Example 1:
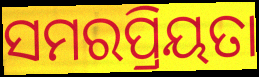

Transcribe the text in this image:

ସମରପ୍ରିୟତା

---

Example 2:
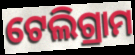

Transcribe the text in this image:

ଟେଲିଗ୍ରାମ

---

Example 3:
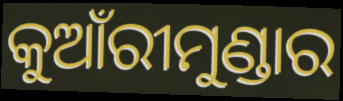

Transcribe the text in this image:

କୁଆଁରୀମୁଣ୍ଡାର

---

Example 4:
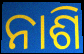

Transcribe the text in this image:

ନାଶି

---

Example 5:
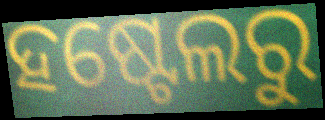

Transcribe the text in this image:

ହଷ୍ଟେଲରୁ